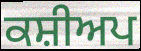
ਕਸ਼ੀਅਪ